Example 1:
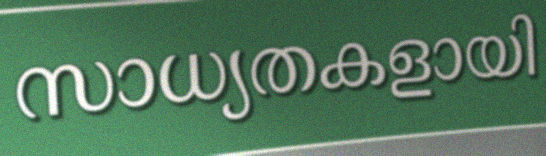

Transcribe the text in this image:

സാധ്യതകളായി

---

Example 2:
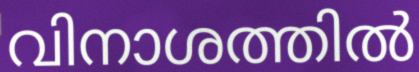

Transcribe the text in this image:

വിനാശത്തിൽ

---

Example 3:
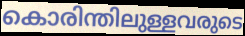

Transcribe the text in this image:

കൊരിന്തിലുള്ളവരുടെ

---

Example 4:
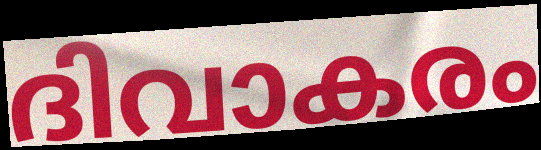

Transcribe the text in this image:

ദിവാകരം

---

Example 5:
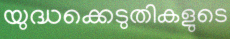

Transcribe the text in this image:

യുദ്ധക്കെടുതികളുടെ